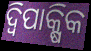
ଦ୍ୱିପାକ୍ଷିକ